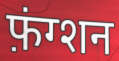
फ़ंग्शन